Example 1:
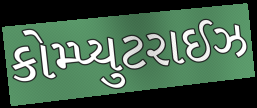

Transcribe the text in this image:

કોમ્પ્યુટરાઈઝ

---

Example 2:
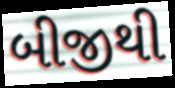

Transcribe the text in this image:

બીજીથી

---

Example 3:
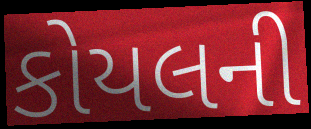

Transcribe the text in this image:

કોયલની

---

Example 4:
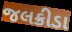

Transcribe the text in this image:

જલક્રીડા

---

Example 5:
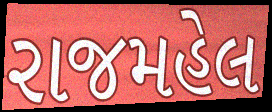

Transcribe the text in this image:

રાજમહેલ